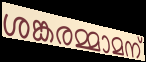
ശങ്കരമ്മാമന്